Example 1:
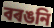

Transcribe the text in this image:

বৰঙনি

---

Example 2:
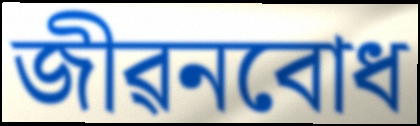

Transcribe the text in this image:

জীৱনবোধ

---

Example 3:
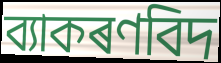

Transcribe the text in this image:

ব্যাকৰণবিদ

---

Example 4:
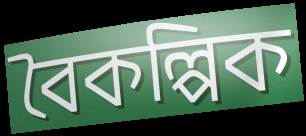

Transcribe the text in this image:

বৈকল্পিক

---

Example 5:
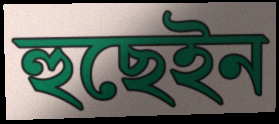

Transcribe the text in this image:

হুছেইন